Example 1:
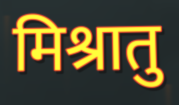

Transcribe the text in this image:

मिश्रातु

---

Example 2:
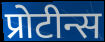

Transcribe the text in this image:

प्रोटीन्स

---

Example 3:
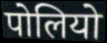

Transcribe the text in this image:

पोलियो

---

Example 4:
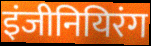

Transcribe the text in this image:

इंजीनियिरंग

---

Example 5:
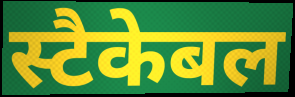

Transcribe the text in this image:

स्टैकेबल